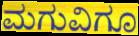
ಮಗುವಿಗೂ